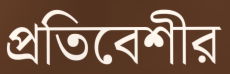
প্রতিবেশীর